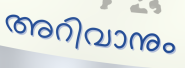
അറിവാനും